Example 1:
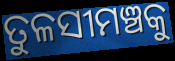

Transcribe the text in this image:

ତୁଳସୀମଞ୍ଚକୁ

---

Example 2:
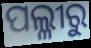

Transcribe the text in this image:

ପଲ୍ଳୀରୁ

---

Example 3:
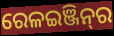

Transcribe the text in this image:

ରେଳଇଞ୍ଜିନ୍‌ର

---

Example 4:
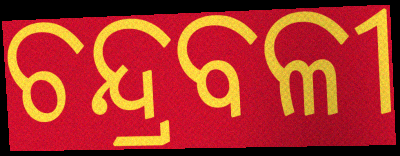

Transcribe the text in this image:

ଚନ୍ଦ୍ରବଳୀ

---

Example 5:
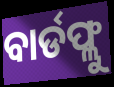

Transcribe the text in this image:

ବାର୍ଡଫ୍ଲୁ